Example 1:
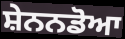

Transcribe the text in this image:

ਸ਼ੇਨਨਡੋਆ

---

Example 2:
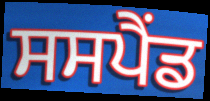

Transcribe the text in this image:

ਸਸਪੈੰਡ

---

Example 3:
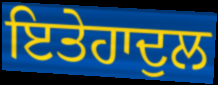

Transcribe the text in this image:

ਇਤੇਹਾਦੁਲ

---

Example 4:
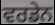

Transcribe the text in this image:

ਵਰਡੇਨ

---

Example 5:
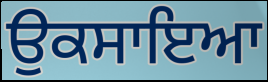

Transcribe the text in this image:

ਉਕਸਾਇਆ